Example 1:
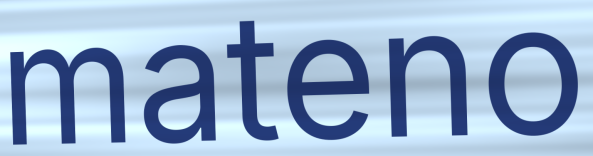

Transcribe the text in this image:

mateno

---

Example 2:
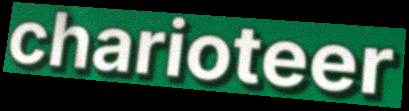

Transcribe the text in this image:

charioteer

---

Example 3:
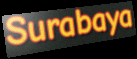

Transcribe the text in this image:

Surabaya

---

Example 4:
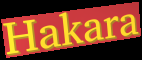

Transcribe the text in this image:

Hakara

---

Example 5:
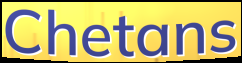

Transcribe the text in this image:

Chetans